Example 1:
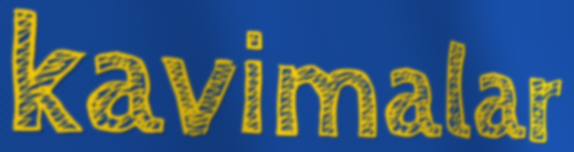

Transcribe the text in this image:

kavimalar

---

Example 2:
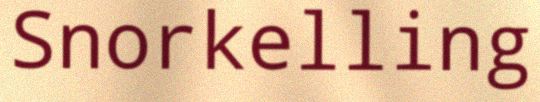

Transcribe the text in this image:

Snorkelling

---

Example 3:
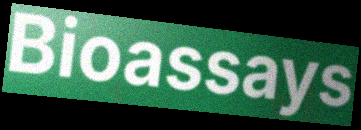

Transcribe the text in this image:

Bioassays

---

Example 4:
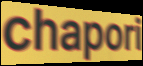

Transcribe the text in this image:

chapori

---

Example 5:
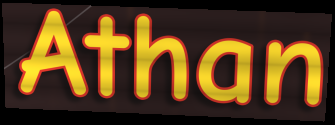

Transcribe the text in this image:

Athan